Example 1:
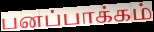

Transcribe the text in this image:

பனப்பாக்கம்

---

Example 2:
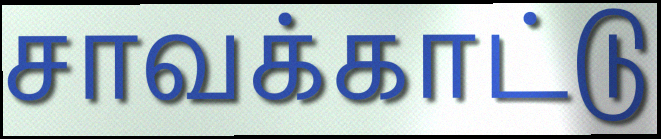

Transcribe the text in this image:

சாவக்காட்டு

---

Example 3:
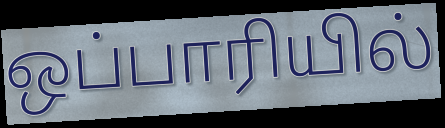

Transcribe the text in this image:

ஒப்பாரியில்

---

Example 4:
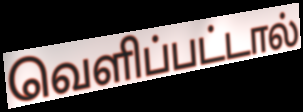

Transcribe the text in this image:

வெளிப்பட்டால்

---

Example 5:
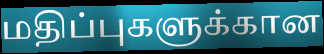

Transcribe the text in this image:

மதிப்புகளுக்கான